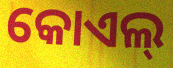
କୋଏଲ୍